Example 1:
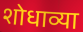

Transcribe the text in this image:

शोधाव्या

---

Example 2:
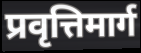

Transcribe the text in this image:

प्रवृत्तिमार्ग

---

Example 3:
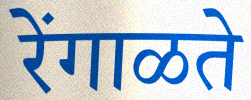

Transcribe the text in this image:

रेंगाळते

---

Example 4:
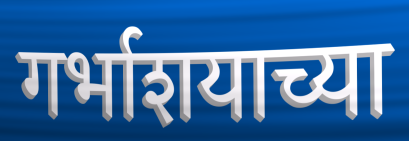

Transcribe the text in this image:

गर्भाशयाच्या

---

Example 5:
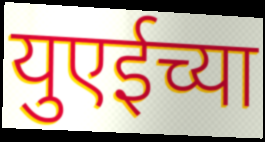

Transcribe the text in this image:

युएईच्या